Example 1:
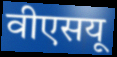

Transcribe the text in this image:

वीएसयू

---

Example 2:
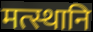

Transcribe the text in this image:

मत्स्थानि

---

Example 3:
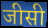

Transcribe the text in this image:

जीसी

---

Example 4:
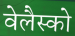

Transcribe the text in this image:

वेलैस्को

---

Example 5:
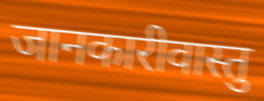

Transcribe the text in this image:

जानकारीवास्तु